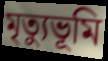
মৃত্যুভূমি